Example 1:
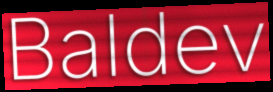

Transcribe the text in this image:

Baldev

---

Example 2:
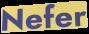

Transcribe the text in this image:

Nefer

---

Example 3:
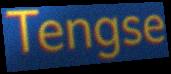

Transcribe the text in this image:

Tengse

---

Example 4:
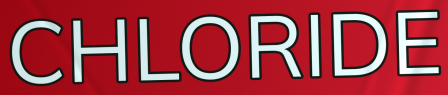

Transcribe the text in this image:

CHLORIDE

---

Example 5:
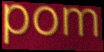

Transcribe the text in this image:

pom